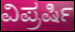
ವಿಪ್ರರ್ಷಿ